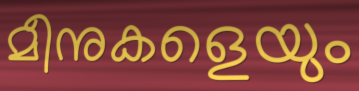
മീനുകളെയും